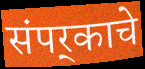
संपर्काचे